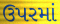
ઉપરમાં